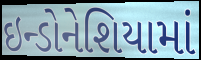
ઇન્ડોનેશિયામાં